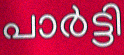
പാർട്ടി